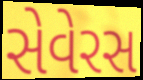
સેવેરસ